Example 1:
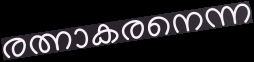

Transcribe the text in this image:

രത്നാകരനെന്ന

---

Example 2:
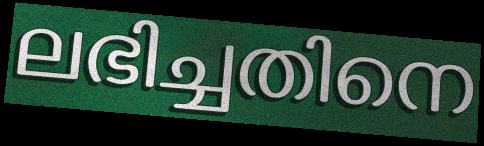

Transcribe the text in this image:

ലഭിച്ചതിനെ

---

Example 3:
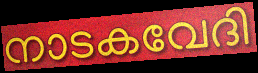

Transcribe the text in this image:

നാടകവേദി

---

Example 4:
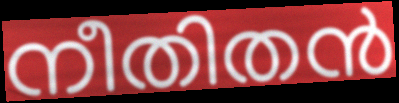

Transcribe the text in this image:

നീതിതൻ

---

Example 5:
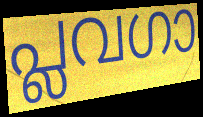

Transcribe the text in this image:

പ്ലവഗാ